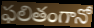
ఫలితంగానో